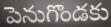
పెనుగొండకు